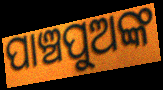
ପାଞ୍ଚପୁଅଙ୍କ